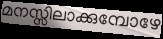
മനസ്സിലാക്കുമ്പോഴേ